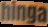
hinga